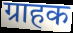
ग्राहक